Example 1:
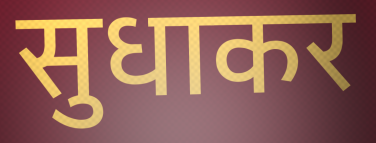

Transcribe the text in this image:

सुधाकर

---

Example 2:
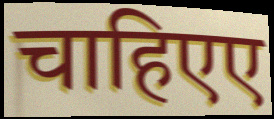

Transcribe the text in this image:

चाहिएए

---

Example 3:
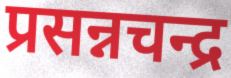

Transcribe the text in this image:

प्रसन्नचन्द्र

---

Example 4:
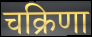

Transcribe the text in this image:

चक्रिणा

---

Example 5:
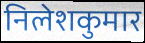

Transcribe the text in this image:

निलेशकुमार